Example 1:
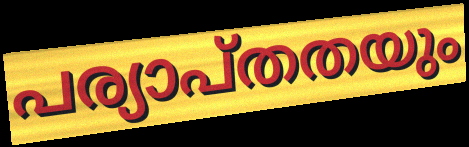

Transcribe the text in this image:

പര്യാപ്തതയും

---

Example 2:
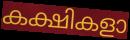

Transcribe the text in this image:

കക്ഷികളാ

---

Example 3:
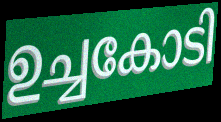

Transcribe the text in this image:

ഉച്ചകോടി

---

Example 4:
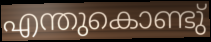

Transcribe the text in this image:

എന്തുകൊണ്ടു്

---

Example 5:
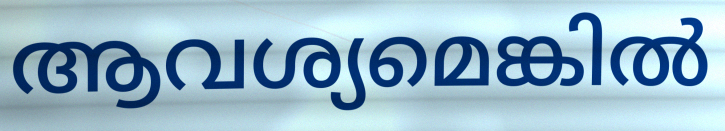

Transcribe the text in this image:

ആവശ്യമെങ്കിൽ